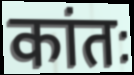
कांतः